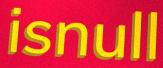
isnull